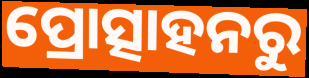
ପ୍ରୋତ୍ସାହନରୁ